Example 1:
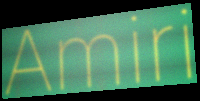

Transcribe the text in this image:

Amiri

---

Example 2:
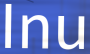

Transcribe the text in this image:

Inu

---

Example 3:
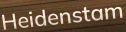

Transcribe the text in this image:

Heidenstam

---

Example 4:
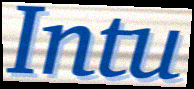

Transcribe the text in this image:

Intu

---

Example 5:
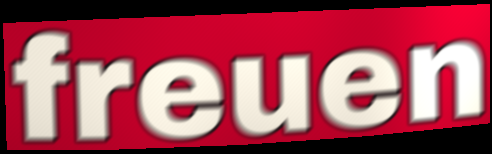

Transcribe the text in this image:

freuen